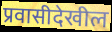
प्रवासीदेखील